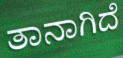
ತಾನಾಗಿದೆ